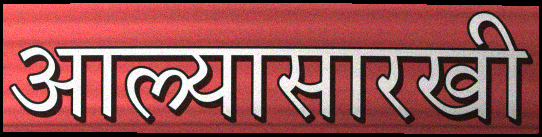
आल्यासारखी